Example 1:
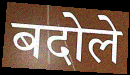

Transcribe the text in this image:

बदोले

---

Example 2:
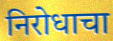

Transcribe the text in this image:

निरोधाचा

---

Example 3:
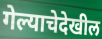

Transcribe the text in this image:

गेल्याचेदेखील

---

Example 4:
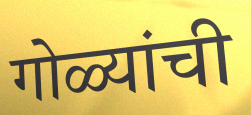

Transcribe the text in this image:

गोळ्यांची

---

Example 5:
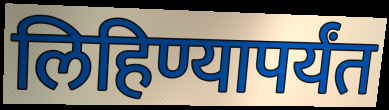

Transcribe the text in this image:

लिहिण्यापर्यंत